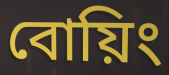
বোয়িং